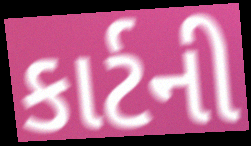
કાર્ટની